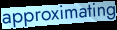
approximating